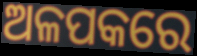
ଅଳପକରେ